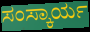
ಸಂಸ್ಕಾರ್ಯ